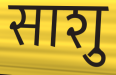
साश्रु